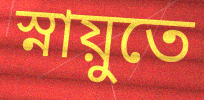
স্নায়ুতে